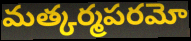
మత్కర్మపరమో